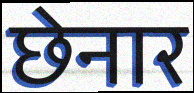
छेनार